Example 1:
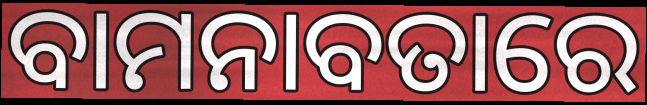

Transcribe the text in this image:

ବାମନାବତାରେ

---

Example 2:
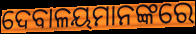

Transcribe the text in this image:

ଦେବାଳୟମାନଙ୍କରେ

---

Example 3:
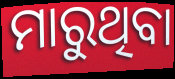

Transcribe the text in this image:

ମାରୁଥିବା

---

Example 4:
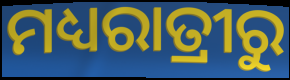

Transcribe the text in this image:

ମଧ୍ୟରାତ୍ରୀରୁ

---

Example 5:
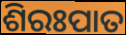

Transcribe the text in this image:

ଶିରଃପାତ